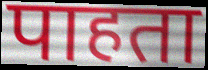
पाहता